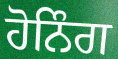
ਹੋਨਿੰਗ